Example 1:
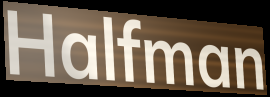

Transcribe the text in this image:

Halfman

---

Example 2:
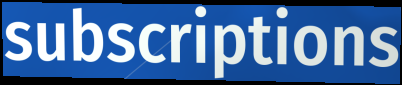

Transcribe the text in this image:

subscriptions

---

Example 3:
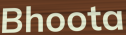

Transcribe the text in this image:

Bhoota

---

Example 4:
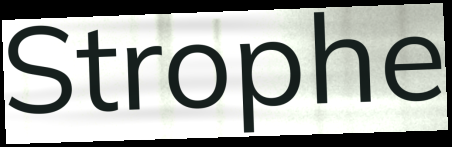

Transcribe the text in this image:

Strophe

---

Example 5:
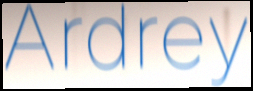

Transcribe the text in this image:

Ardrey